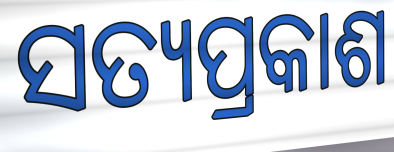
ସତ୍ୟପ୍ରକାଶ